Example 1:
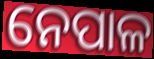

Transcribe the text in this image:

ନେପାଳ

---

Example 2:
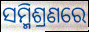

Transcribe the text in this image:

ସମ୍ମିଶ୍ରଣରେ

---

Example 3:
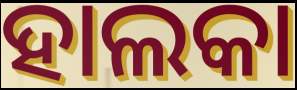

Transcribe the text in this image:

ହାଲକା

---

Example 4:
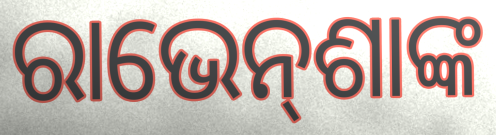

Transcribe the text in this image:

ରାଭେନ୍‌ଶାଙ୍କ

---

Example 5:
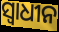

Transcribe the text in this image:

ସ୍ଵାଧୀନ